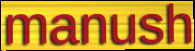
manush